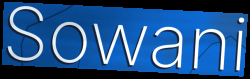
Sowani